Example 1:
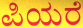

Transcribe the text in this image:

ಪಿಯರೆ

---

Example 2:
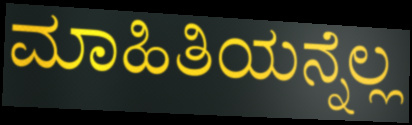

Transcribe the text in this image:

ಮಾಹಿತಿಯನ್ನೆಲ್ಲ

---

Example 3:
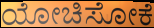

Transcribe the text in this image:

ಯೋಚಿಸೋಕೆ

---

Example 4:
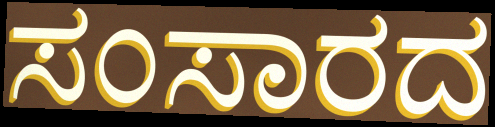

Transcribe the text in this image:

ಸಂಸಾರದ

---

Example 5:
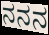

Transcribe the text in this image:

ನನನ